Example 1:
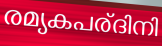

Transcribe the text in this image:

രമ്യകപര്ദിനി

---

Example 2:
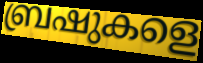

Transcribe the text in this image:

ബ്രഷുകളെ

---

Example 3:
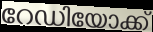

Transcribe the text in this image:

റേഡിയോക്ക്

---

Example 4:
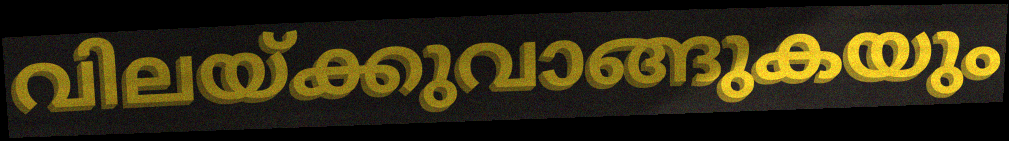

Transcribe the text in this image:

വിലയ്ക്കുവാങ്ങുകയും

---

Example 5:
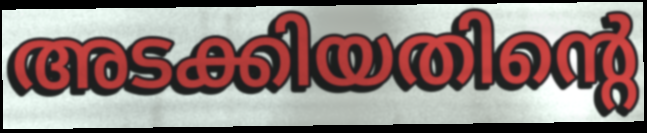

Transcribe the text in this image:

അടക്കിയതിന്റെ